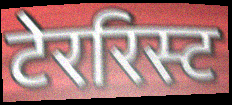
टेररिस्ट